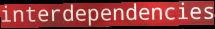
interdependencies